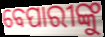
ବେପାରୀଙ୍କୁ